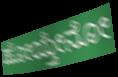
ಹೋಯ್ತೇನೋ